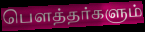
பௌத்தர்களும்